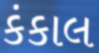
કંકાલ